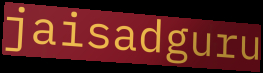
jaisadguru